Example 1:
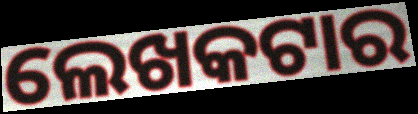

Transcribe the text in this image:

ଲେଖକଟାର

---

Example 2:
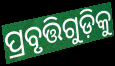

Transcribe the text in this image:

ପ୍ରବୃତ୍ତିଗୁଡ଼ିକୁ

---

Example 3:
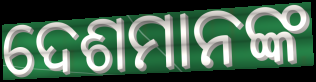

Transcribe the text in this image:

ଦେଶମାନଙ୍କ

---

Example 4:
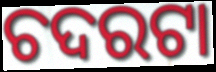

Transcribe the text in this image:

ଚଦରଟା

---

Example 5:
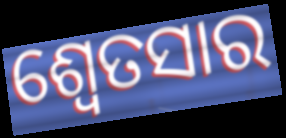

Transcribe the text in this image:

ଶ୍ଵେତସାର